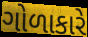
ગોળાકારે